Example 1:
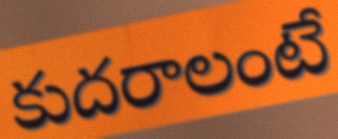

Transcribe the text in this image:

కుదరాలంటే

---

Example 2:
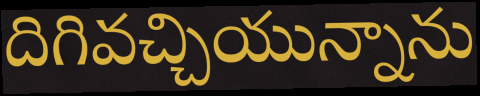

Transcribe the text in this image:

దిగివచ్చియున్నాను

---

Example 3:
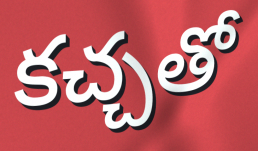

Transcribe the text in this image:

కచ్చతో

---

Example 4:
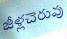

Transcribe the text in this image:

జీళ్లచెరువు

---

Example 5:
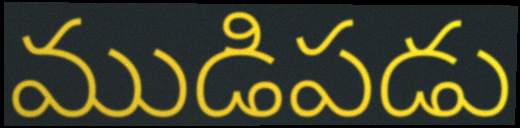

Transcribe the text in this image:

ముడిపడు